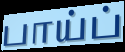
பாய்ப்